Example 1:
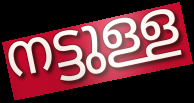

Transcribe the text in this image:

നട്ടുള്ള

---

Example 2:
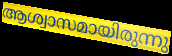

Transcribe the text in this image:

ആശ്വാസമായിരുന്നു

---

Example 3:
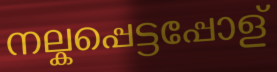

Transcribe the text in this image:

നല്കപ്പെട്ടപ്പോള്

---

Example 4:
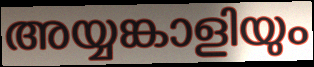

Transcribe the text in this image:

അയ്യങ്കാളിയും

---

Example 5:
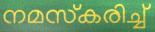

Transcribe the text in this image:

നമസ്‌കരിച്ച്